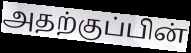
அதற்குப்பின்